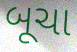
બૂચા